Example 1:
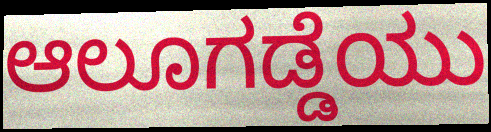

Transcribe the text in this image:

ಆಲೂಗಡ್ಡೆಯು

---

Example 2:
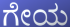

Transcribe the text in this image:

ಗೇಯ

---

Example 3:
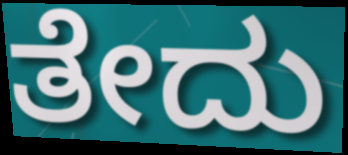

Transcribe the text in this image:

ತೇದು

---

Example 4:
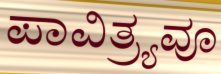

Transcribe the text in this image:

ಪಾವಿತ್ರ್ಯವೂ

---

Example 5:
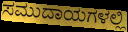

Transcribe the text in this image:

ಸಮುದಾಯಗಳಲ್ಲಿ